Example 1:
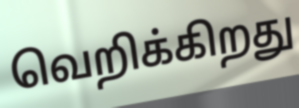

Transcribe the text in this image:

வெறிக்கிறது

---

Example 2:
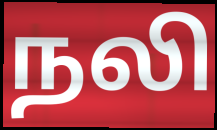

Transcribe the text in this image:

நலி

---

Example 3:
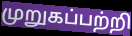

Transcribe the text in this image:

முறுகப்பற்றி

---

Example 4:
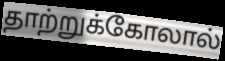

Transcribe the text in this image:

தாற்றுக்கோலால்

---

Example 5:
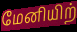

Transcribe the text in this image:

மேனியிற்